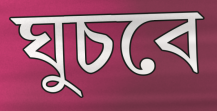
ঘুচবে